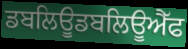
ਡਬਲਿਊਡਬਲਿਊਐੱਫ